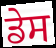
ਡੇਸ